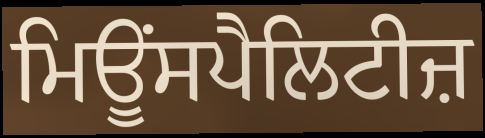
ਮਿਊਂਸਪੈਲਿਟੀਜ਼